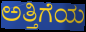
ಅತ್ತಿಗೆಯ